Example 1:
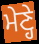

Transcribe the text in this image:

ਮੇਣ੍ਹੇ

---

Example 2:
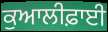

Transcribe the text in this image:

ਕੁਆਲੀਫ਼ਾਈ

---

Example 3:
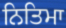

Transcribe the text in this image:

ਨਿਤਿਮਾ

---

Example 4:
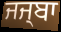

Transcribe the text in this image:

ਜਜ੍ਬਾ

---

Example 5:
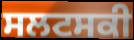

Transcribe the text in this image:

ਸਲਟਸਕੀ